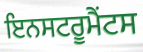
ਇਨਸਟਰੂਮੈਂਟਸ